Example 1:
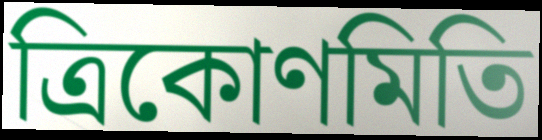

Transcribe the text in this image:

ত্ৰিকোণমিতি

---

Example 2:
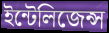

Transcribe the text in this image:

ইন্টেলিজেন্স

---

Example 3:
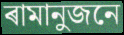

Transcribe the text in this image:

ৰামানুজনে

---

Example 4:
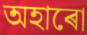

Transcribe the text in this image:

অহাৰো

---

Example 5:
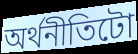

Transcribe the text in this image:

অৰ্থনীতিটো